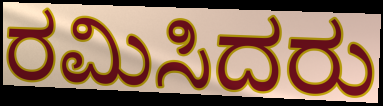
ರಮಿಸಿದರು